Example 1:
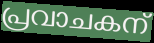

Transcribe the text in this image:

പ്രവാചകന്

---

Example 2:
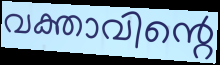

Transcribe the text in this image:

വക്താവിന്റെ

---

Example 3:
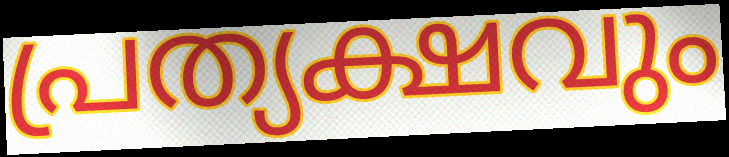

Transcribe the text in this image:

പ്രത്യക്ഷവും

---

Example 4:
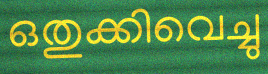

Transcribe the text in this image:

ഒതുക്കിവെച്ചു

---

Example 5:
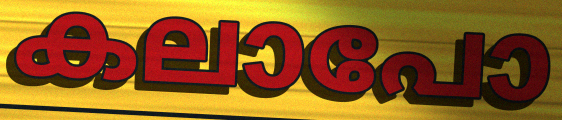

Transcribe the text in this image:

കലാപോ